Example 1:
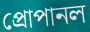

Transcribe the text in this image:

প্রোপানল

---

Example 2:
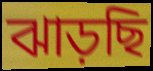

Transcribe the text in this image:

ঝাড়ছি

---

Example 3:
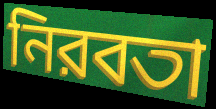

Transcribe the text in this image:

নিরবতা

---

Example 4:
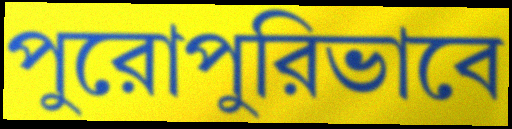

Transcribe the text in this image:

পুরোপুরিভাবে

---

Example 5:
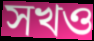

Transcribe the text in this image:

সখও